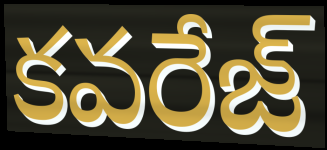
కవరేజ్